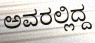
ಅವರಲ್ಲಿದ್ದ